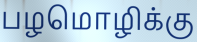
பழமொழிக்கு